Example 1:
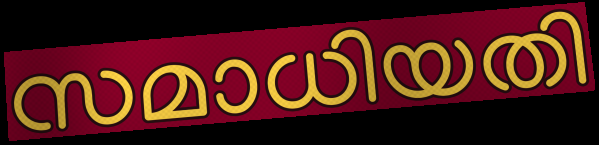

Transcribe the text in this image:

സമാധിയതി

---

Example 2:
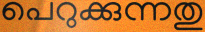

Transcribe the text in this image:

പെറുക്കുന്നതു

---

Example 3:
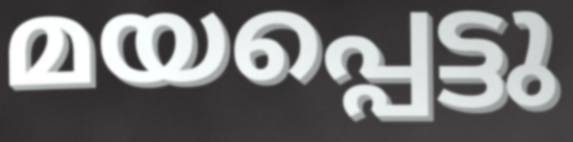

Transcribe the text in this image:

മയപ്പെട്ടു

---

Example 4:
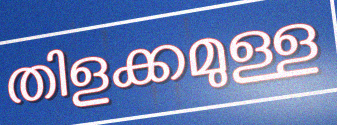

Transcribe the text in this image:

തിളക്കമുള്ള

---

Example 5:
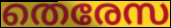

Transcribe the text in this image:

തെരേസ